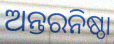
ଅନ୍ତରନିଷ୍ଠା